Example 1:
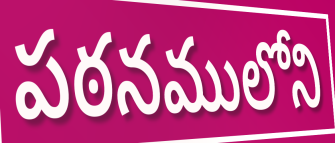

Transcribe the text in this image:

పఠనములోని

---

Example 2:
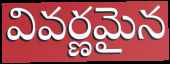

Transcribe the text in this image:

వివర్ణమైన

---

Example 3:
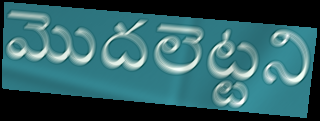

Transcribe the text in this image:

మొదలెట్టని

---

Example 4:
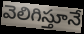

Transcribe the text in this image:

వెలిగిస్తూనే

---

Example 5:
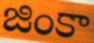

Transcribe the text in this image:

జింకా